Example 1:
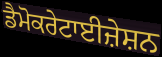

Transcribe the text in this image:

ਡੈਮੋਕਰੇਟਾਈਜ਼ੇਸ਼ਨ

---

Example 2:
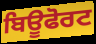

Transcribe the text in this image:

ਬਿਊਫੋਰਟ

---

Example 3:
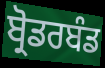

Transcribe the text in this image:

ਬ੍ਰੋਡਰਬੰਡ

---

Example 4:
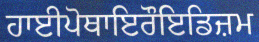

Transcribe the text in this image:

ਹਾਈਪੋਥਾਇਰੌਇਡਿਜ਼ਮ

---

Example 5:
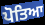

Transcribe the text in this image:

ਪੋਤਿਆ